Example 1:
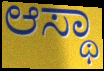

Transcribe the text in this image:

ಆಸ್ಥಾ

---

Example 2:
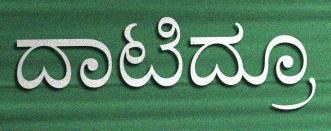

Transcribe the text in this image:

ದಾಟಿದ್ರೂ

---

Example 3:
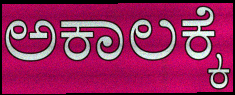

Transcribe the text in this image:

ಅಕಾಲಕ್ಕೆ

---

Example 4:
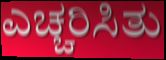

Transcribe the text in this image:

ಎಚ್ಚರಿಸಿತು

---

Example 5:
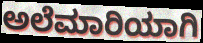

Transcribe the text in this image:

ಅಲೆಮಾರಿಯಾಗಿ